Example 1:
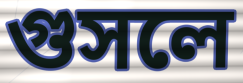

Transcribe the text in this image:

গুসলে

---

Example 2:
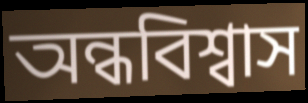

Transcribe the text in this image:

অন্ধবিশ্বাস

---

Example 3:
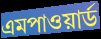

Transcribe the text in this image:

এমপাওয়ার্ড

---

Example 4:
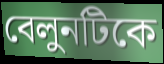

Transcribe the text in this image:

বেলুনটিকে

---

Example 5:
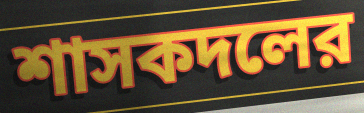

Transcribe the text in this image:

শাসকদলের